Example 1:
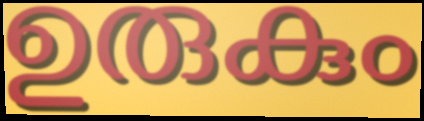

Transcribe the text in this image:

ഉരുകും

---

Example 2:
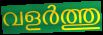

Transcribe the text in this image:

വളർത്തു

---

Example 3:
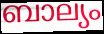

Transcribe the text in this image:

ബാല്യം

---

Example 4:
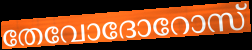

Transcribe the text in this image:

തേവോദോറോസ്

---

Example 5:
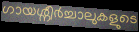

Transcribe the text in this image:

ഗായശ്നീർച്ചാലുകളുടെ